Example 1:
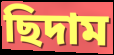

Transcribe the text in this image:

ছিদাম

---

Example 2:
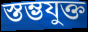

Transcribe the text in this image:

স্তম্ভযুক্ত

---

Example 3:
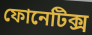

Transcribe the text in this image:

ফোনেটিক্স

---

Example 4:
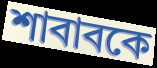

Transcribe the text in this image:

শাবাবকে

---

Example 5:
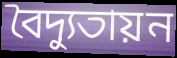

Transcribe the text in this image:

বৈদ্যুতায়ন